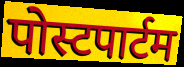
पोस्टपार्टम